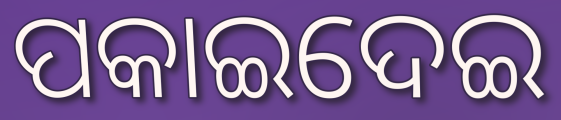
ପକାଇଦେଇ